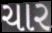
ચાર